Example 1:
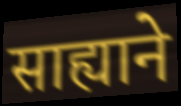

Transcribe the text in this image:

साह्याने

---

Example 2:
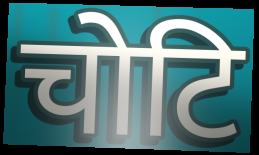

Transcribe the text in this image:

चोटि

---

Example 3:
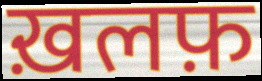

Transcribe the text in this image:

ख़लफ़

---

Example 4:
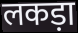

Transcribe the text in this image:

लकड़ा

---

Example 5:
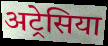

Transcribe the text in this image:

अट्रेसिया